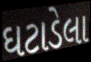
ઘટાડેલા